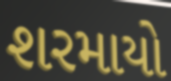
શરમાયો